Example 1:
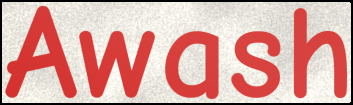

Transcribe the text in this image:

Awash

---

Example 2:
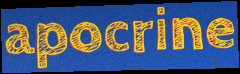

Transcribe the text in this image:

apocrine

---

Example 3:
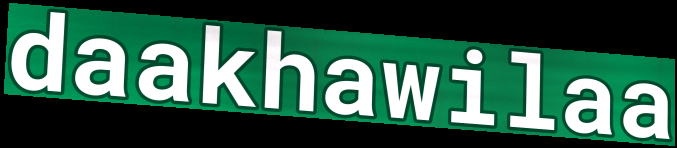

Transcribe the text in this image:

daakhawilaa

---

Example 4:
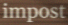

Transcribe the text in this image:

impost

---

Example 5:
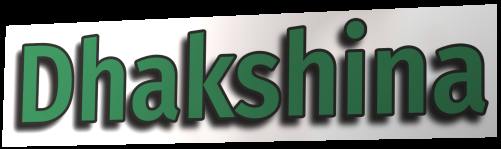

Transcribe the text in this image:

Dhakshina